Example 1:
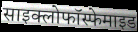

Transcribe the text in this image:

साइक्लोफॉस्फेमाइड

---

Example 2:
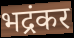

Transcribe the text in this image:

भद्रंकर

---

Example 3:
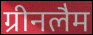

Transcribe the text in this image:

ग्रीनलैम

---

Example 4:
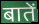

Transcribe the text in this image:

बातें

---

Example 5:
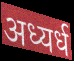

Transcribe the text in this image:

अध्यर्ध